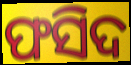
ଫସିଦ